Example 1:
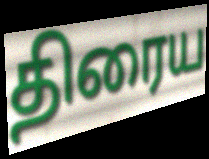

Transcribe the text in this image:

திரைய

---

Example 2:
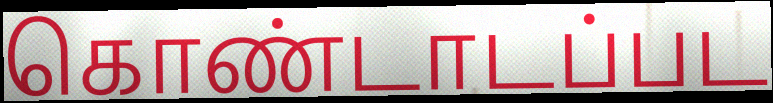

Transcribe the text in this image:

கொண்டாடப்பட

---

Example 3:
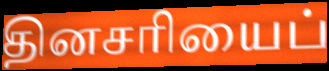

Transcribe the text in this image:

தினசரியைப்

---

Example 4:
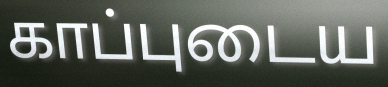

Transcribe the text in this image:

காப்புடைய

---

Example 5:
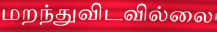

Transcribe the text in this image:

மறந்துவிடவில்லை